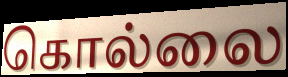
கொல்லை